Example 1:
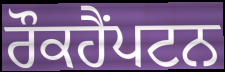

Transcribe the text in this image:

ਰੌਕਹੈਂਪਟਨ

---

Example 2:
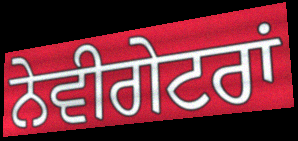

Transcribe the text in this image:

ਨੇਵੀਗੇਟਰਾਂ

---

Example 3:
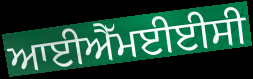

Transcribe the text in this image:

ਆਈਐੱਮਈਈਸੀ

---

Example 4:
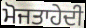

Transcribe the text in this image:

ਮੋਜਤਾਹੇਦੀ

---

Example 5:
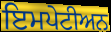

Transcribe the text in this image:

ਇਮਪੇਟੀਅਨ